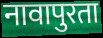
नावापुरता